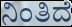
ನಿಂತಿದೆ